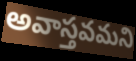
అవాస్తవమని